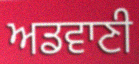
ਅਡਵਾਣੀ